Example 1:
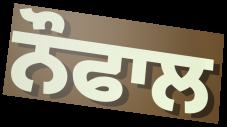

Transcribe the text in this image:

ਨੌਫਾਲ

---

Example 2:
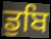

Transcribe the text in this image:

ਡੁਬਿ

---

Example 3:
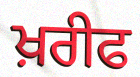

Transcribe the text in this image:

ਖ਼ਰੀਫ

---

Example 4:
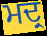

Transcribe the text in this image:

ਮਦ੍ਰ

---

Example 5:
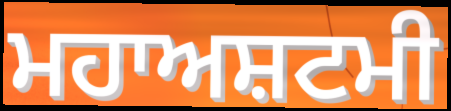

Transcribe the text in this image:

ਮਹਾਅਸ਼ਟਮੀ